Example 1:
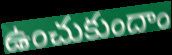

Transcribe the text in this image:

ఉంచుకుందాం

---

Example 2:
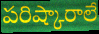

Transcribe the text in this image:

పరిష్కారాలే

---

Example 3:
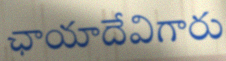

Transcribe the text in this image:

ఛాయాదేవిగారు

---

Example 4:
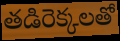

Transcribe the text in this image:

తడిరెక్కలతో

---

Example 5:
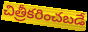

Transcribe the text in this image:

చిత్రీకరించబడే